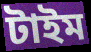
টাইম